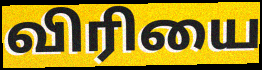
விரியை